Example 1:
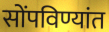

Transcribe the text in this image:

सोंपविण्यांत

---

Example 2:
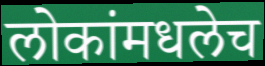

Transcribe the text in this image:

लोकांमधलेच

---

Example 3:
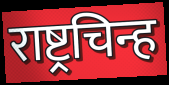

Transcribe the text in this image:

राष्ट्रचिन्ह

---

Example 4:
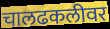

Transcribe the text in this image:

चालढकलीवर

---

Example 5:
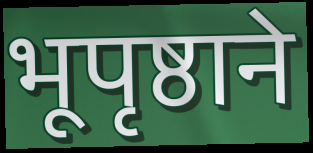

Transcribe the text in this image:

भूपृष्ठाने